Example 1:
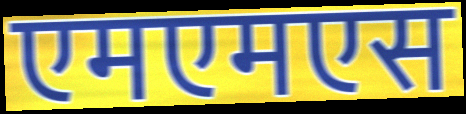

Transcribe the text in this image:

एमएमएस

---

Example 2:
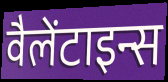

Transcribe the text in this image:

वैलेंटाइन्स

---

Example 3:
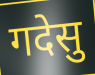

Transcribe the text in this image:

गदेसु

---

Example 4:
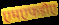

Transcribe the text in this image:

एमएफडीए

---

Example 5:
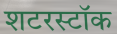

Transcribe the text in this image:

शटरस्‍टॉक